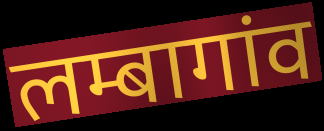
लम्बागांव